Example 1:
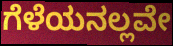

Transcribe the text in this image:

ಗೆಳೆಯನಲ್ಲವೇ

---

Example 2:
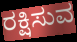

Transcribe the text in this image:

ರಕ್ಷಿಸುವ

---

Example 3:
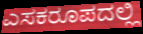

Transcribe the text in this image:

ಎಸಕರೂಪದಲ್ಲಿ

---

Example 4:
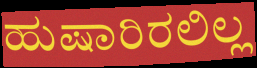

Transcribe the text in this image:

ಹುಷಾರಿರಲಿಲ್ಲ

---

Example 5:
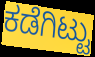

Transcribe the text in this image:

ಕಡೆಗಿಟ್ಟು